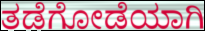
ತಡೆಗೋಡೆಯಾಗಿ